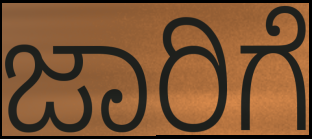
ಜಾರಿಗೆ